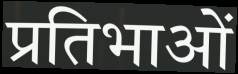
प्रतिभाओं